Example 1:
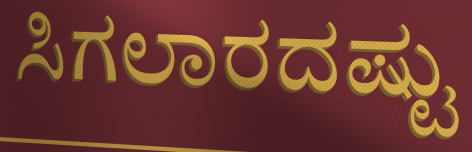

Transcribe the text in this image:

ಸಿಗಲಾರದಷ್ಟು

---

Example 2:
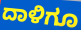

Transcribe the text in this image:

ದಾಳಿಗೂ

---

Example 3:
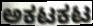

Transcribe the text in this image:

ಅಕಟಕಟ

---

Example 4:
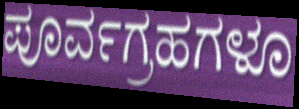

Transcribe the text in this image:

ಪೂರ್ವಗ್ರಹಗಳೂ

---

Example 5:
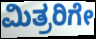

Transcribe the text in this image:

ಮಿತ್ರರಿಗೇ